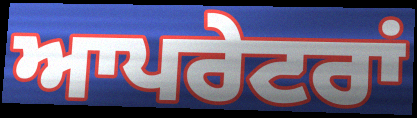
ਆਪਰੇਟਰਾਂ